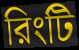
রিংটি